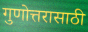
गुणोत्तरासाठी